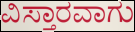
ವಿಸ್ತಾರವಾಗು